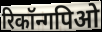
रिकॉन्गपिओ